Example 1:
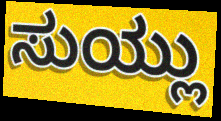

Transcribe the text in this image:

ಸುಯ್ಲು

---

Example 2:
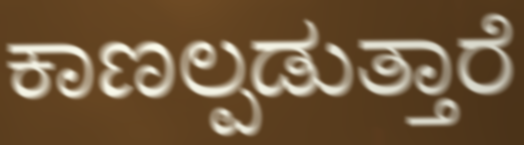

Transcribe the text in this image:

ಕಾಣಲ್ಪಡುತ್ತಾರೆ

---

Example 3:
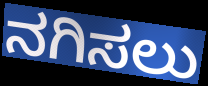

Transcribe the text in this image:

ನಗಿಸಲು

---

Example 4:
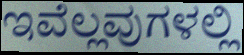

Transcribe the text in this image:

ಇವೆಲ್ಲವುಗಳಲ್ಲಿ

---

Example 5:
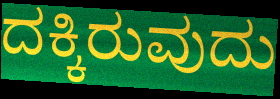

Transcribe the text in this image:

ದಕ್ಕಿರುವುದು